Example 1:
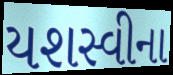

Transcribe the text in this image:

યશસ્વીના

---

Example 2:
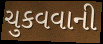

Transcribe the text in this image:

ચુકવવાની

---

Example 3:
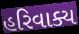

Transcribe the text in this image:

હરિવાક્ય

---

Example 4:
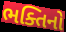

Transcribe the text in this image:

ભક્તિનો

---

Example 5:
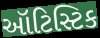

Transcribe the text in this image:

ઑટિસ્ટિક